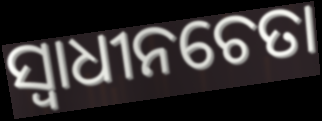
ସ୍ୱାଧୀନଚେତା